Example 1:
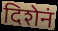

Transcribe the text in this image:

दिशेनं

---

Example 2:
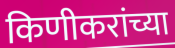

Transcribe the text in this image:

किणीकरांच्या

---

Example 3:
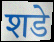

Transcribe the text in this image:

शडे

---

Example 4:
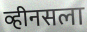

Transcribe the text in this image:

व्हीनसला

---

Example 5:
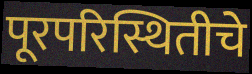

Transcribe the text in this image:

पूरपरिस्थितीचे